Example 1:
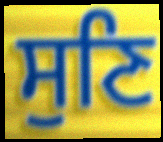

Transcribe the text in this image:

ਸੁਣਿ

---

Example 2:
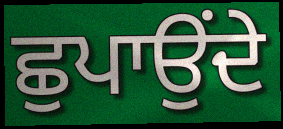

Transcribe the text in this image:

ਛੁਪਾਉਂਦੇ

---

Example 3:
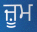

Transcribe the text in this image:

ਜ਼ੂਮ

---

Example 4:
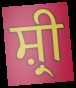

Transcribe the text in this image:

ਸ਼੍ਰੀ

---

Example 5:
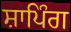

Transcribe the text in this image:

ਸ਼ਾਪਿੰਗ